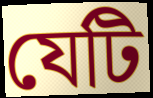
যেটি